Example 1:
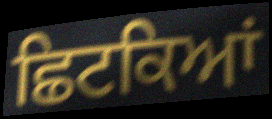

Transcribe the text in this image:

ਛਿਟਕਿਆਂ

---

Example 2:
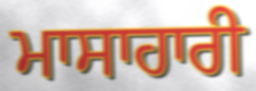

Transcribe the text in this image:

ਮਾਸਾਹਾਰੀ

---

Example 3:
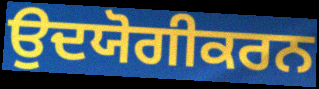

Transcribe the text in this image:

ਉਦਯੋਗੀਕਰਨ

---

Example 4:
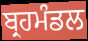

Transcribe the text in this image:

ਬ੍ਰਹਮੰਡਲ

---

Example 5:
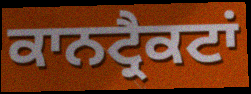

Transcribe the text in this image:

ਕਾਨਟ੍ਰੈਕਟਾਂ